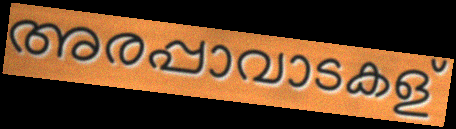
അരപ്പാവാടകള്